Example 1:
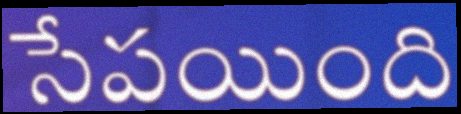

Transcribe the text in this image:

సేపయింది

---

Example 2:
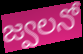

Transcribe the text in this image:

జ్వలనో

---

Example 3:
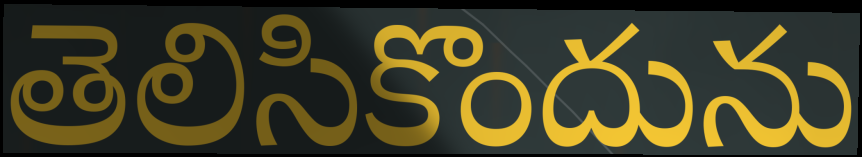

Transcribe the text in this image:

తెలిసికొందును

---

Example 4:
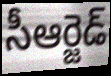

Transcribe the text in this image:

సీఆర్జెడ్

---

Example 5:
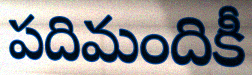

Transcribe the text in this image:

పదిమందికీ